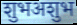
शुभअशुभ